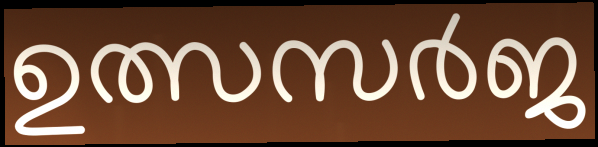
ഉത്സസർജ